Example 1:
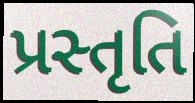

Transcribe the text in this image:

પ્રસ્તૃતિ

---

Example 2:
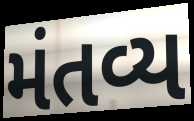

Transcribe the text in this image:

મંતવ્ય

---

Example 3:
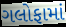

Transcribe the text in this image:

ગલોફામાં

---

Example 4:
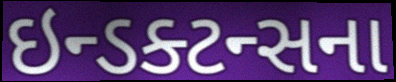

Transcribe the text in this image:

ઇન્ડક્ટન્સના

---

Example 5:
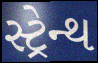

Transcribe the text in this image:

સ્ટ્રેન્થ